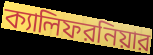
ক্যালিফরনিয়ার